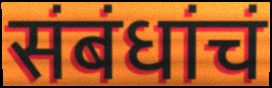
संबंधांचं